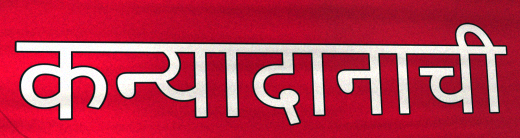
कन्यादानाची